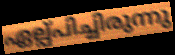
ഏല്പ്പിച്ചിരുന്നു